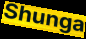
Shunga